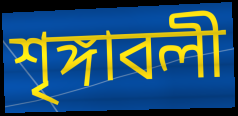
শৃঙ্গাবলী